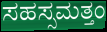
ಸಹಸ್ಸಮತ್ತಂ